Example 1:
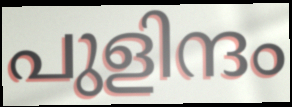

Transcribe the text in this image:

പുളിന്ദം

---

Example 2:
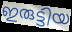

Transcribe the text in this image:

ഇരുട്ടിയ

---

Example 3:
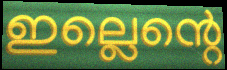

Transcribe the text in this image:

ഇല്ലെന്റെ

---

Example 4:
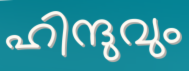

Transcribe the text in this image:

ഹിന്ദുവും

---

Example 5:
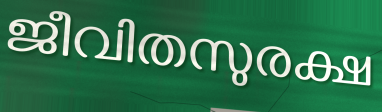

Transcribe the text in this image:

ജീവിതസുരക്ഷ